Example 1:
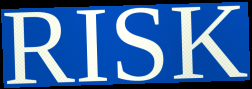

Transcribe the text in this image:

RISK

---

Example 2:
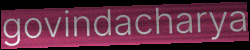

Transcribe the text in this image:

govindacharya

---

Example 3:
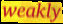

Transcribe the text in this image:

weakly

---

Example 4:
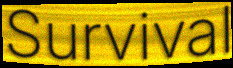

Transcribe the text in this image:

Survival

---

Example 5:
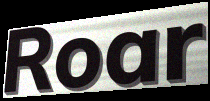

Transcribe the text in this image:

Roar